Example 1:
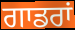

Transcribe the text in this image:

ਗਾਡਰਾਂ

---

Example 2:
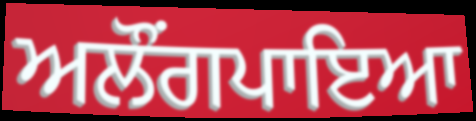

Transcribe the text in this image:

ਅਲੌਂਗਪਾਇਆ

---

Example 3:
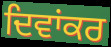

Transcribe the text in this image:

ਦਿਵਾਂਕਰ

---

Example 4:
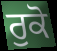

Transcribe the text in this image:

ਰੁਕੋ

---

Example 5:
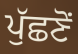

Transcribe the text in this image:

ਪੁੱਛਣੋਂ